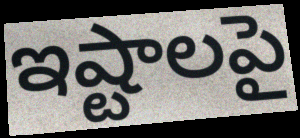
ఇష్టాలపై